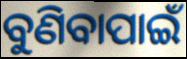
ବୁଣିବାପାଇଁ